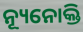
ନ୍ୟୂନୋକ୍ତି